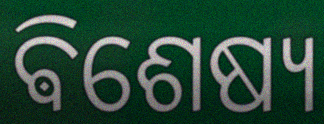
ଵିଶେଷ୍ୟ